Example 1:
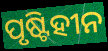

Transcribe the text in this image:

ପୃଷ୍ଟିହୀନ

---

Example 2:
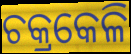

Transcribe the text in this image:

ଚକ୍ରକେଳି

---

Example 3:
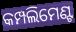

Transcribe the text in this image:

କମ୍ପଲିମେଣ୍ଟ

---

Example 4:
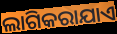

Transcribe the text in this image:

ଲାଗିକରାଯାଏ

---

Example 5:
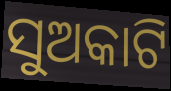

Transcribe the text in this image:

ସୁଅକାଟି